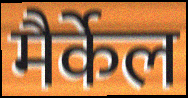
मैर्केल